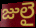
జులై